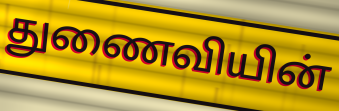
துணைவியின்